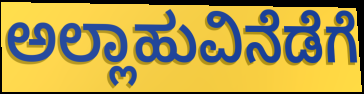
ಅಲ್ಲಾಹುವಿನೆಡೆಗೆ